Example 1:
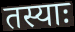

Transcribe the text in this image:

तस्याः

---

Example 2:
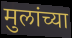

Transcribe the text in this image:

मुलांच्या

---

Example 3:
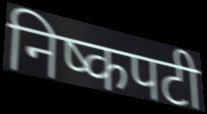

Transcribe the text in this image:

निष्कपटी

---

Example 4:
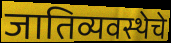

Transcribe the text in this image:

जातिव्यवस्थेचे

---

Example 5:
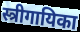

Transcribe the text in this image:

स्त्रीगायिका